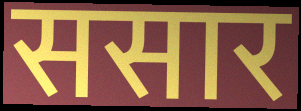
ससार